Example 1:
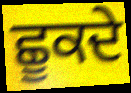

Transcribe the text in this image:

ਛੂਕਦੇ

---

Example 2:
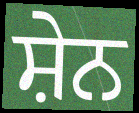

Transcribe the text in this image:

ਸ਼ੇਨ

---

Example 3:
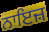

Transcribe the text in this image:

ਨਾਇਜ਼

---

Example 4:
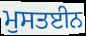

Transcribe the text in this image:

ਮੁਸਤਈਨ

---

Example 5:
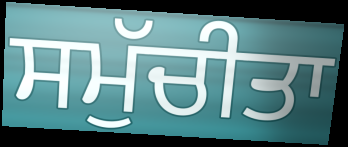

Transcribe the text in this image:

ਸਮੁੱਚੀਤਾ